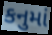
કનુમાં